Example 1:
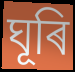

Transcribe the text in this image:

ঘূৰি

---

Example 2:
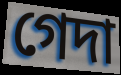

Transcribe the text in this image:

গেদা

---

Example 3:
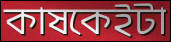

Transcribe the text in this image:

কাষকেইটা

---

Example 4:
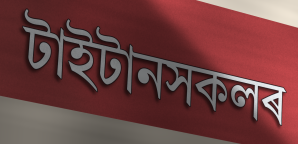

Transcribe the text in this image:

টাইটানসকলৰ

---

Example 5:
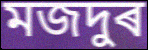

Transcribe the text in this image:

মজদুৰ